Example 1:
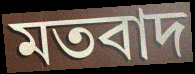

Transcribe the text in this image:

মতবাদ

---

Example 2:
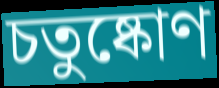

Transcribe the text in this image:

চতুষ্কোণ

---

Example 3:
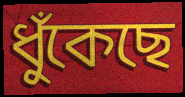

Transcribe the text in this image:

ধুঁকেছে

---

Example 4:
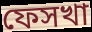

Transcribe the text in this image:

ফেসখা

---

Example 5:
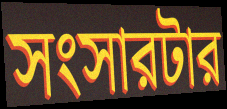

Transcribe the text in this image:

সংসারটার